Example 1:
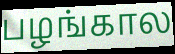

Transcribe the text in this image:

பழங்கால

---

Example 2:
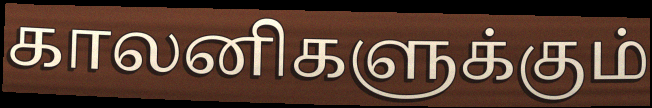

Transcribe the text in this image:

காலனிகளுக்கும்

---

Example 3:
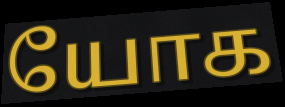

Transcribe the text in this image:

யோக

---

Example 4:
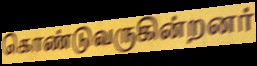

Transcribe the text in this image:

கொண்டுவருகின்றனர்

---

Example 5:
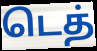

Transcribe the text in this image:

டெத்